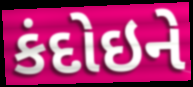
કંદોઇને